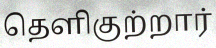
தெளிகுற்றார்